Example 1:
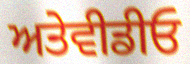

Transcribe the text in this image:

ਅਤੇਵੀਡੀਓ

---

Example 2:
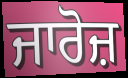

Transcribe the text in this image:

ਜਾਰੋਜ਼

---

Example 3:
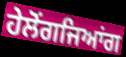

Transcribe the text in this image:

ਹੇਲੋਂਗਜਿਆਂਗ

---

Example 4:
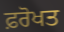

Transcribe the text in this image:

ਫ਼ਰੋਖਤ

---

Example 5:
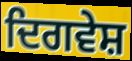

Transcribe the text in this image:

ਦਿਗਵੇਸ਼